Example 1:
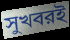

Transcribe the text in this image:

সুখবরই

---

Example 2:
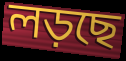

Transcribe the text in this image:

লড়ছে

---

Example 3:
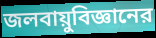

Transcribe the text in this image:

জলবায়ুবিজ্ঞানের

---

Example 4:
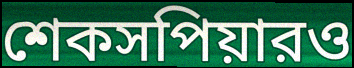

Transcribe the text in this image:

শেকসপিয়ারও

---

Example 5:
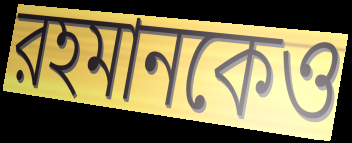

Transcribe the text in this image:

রহমানকেও